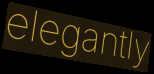
elegantly